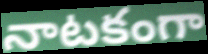
నాటకంగా